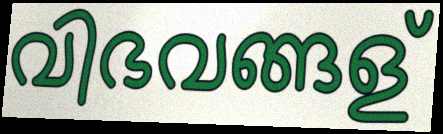
വിഭവങ്ങള്